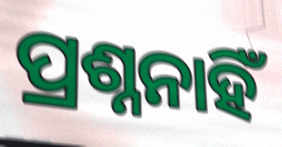
ପ୍ରଶ୍ନନାହିଁ